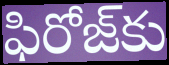
ఫిరోజ్‌కు